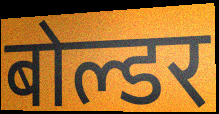
बोल्डर